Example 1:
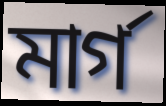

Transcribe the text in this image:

মাৰ্গ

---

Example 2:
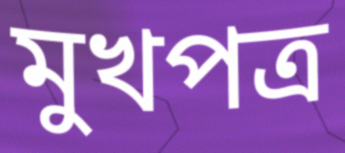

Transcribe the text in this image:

মুখপত্ৰ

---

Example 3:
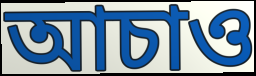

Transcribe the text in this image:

আচাও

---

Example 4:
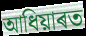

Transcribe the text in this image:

আধিয়াৰত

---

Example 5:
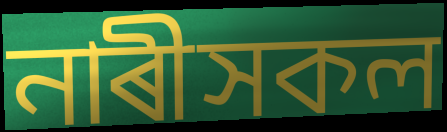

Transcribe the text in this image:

নাৰীসকল